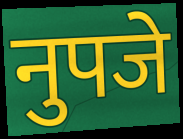
नुपजे